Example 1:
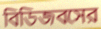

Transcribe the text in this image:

বিডিজবসের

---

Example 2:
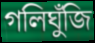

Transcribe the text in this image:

গলিঘুঁজি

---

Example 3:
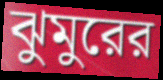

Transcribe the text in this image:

ঝুমুরের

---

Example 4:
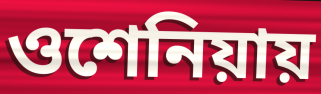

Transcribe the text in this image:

ওশেনিয়ায়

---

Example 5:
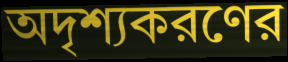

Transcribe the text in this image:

অদৃশ্যকরণের